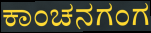
ಕಾಂಚನಗಂಗ